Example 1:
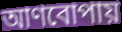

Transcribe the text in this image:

আণবোপায়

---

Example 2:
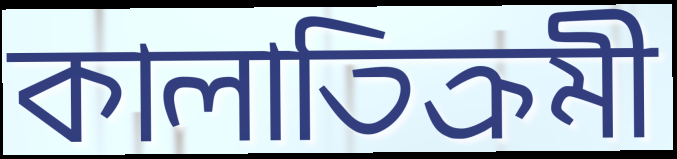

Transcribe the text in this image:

কালাতিক্রমী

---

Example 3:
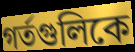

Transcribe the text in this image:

গর্তগুলিকে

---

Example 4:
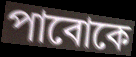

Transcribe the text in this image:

পাবোকে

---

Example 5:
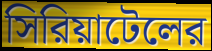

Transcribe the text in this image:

সিরিয়াটেলের